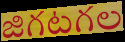
జిగటగల